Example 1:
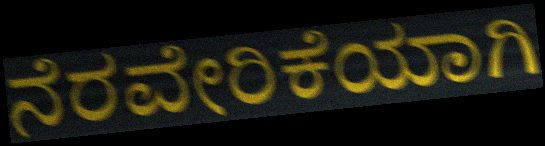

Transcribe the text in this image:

ನೆರವೇರಿಕೆಯಾಗಿ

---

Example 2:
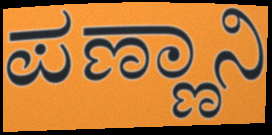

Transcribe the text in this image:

ಪಣ್ಣಾನಿ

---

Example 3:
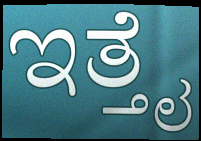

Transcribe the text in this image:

ಇತ್ತೈ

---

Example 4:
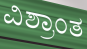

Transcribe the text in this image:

ವಿಶ್ರಾಂತ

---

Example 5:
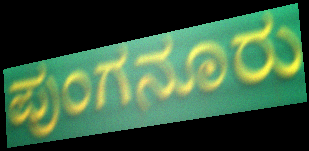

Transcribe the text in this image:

ಪುಂಗನೂರು